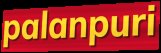
palanpuri